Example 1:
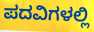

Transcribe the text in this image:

ಪದವಿಗಳಲ್ಲಿ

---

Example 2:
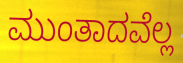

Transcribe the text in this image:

ಮುಂತಾದವೆಲ್ಲ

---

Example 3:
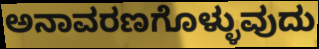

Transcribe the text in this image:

ಅನಾವರಣಗೊಳ್ಳುವುದು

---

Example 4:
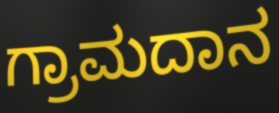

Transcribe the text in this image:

ಗ್ರಾಮದಾನ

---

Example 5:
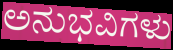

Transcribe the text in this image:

ಅನುಭವಿಗಳು